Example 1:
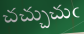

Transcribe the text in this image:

చచ్చుచుఁ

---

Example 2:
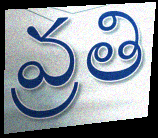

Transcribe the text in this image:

వ్రతి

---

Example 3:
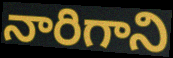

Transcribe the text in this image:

నారిగాని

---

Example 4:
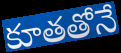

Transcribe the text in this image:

కూతతోనే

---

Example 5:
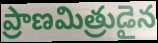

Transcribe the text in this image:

ప్రాణమిత్రుడైన